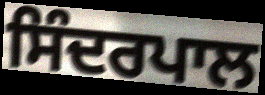
ਸਿੰਦਰਪਾਲ